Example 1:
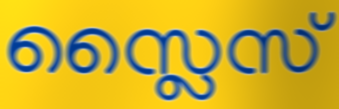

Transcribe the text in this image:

സ്ലൈസ്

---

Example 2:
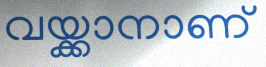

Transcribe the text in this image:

വയ്ക്കാനാണ്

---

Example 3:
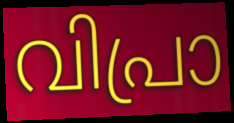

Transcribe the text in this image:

വിപ്രാ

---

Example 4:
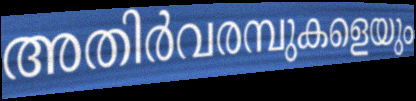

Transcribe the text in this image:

അതിർവരമ്പുകളെയും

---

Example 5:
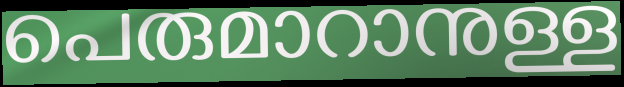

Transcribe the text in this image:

പെരുമാറാനുള്ള